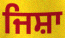
ਜਿਸ਼ਾ